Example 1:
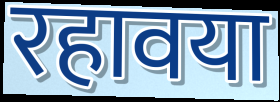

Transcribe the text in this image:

रहावया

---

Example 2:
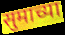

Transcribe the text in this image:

सुमाच्या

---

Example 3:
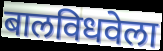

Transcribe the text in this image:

बालविधवेला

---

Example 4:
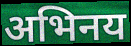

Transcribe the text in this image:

अभिनय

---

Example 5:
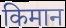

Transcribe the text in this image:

किमान